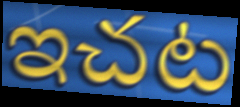
ఇచట